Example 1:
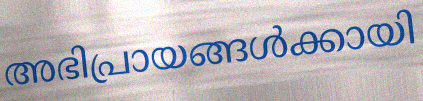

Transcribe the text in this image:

അഭിപ്രായങ്ങൾക്കായി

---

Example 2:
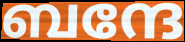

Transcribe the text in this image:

ബന്ദേ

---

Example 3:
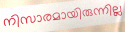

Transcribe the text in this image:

നിസാരമായിരുന്നില്ല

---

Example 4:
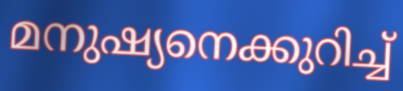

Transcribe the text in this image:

മനുഷ്യനെക്കുറിച്ച്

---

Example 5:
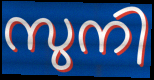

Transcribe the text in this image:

സുനി